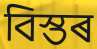
বিস্তৰ